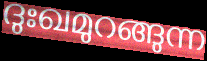
ദുഃഖമുറങ്ങുന്ന